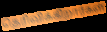
தெரிவிக்கிறார்கள்